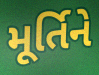
મૂર્તિને